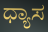
ಧ್ಯಾಸ